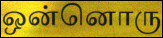
ஒன்னொரு